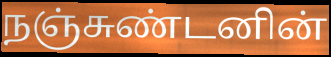
நஞ்சுண்டனின்